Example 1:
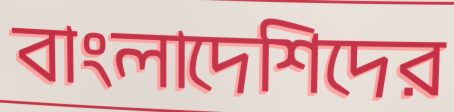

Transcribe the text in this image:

বাংলাদেশিদের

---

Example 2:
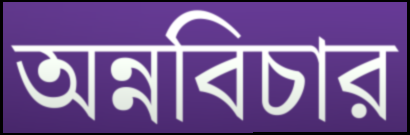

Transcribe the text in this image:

অন্নবিচার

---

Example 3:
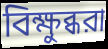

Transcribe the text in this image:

বিক্ষুব্ধরা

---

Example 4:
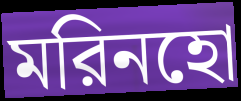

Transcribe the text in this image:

মরিনহো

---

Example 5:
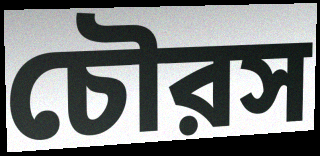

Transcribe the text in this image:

চৌরস